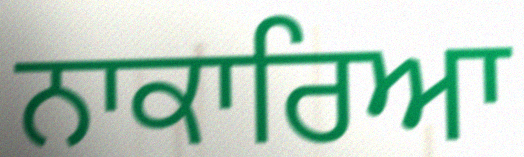
ਨਾਕਾਰਿਆ